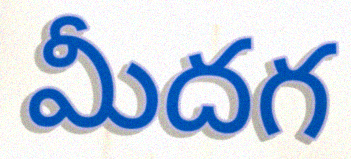
మీదగ